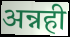
अन्नही